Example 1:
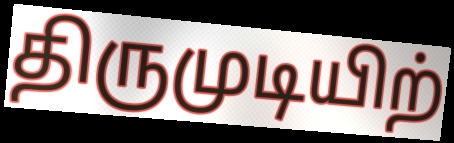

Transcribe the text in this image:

திருமுடியிற்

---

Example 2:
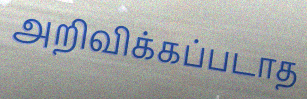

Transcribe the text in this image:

அறிவிக்கப்படாத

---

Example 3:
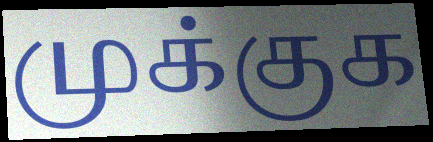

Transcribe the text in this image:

முக்குக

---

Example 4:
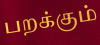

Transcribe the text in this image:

பறக்கும்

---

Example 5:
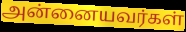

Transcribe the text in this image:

அன்னையவர்கள்